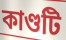
কাণ্ডটি